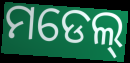
ମଡେଲ୍